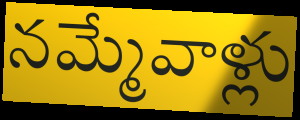
నమ్మేవాళ్లు